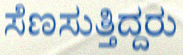
ಸೆಣಸುತ್ತಿದ್ದರು